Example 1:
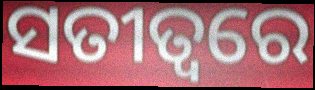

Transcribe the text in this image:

ସତୀତ୍ୱରେ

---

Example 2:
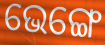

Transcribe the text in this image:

ଭେଙ୍ଗେ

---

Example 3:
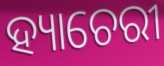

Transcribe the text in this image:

ହ୍ୟାଚେରୀ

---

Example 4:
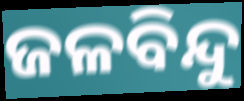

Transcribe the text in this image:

ଜଳବିନ୍ଦୁ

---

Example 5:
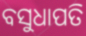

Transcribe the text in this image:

ବସୁଧାପତି